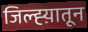
जिल्ह्य़ातून